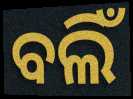
ବଲିଁ